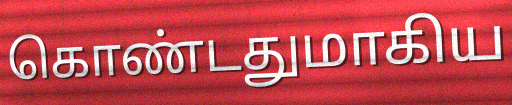
கொண்டதுமாகிய